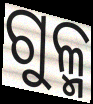
ଗୁଳ୍ମ